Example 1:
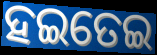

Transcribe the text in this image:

ହଇତେଇ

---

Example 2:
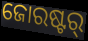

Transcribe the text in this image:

ଜୋରଷ୍ଟର୍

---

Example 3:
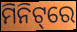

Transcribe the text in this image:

ମିନିଟ୍‌ରେ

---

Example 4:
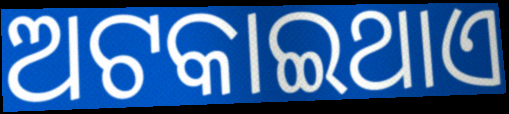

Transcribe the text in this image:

ଅଟକାଇଥାଏ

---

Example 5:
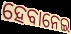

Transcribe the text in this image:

ହେବାନେଇ